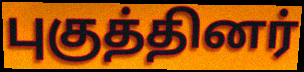
புகுத்தினர்